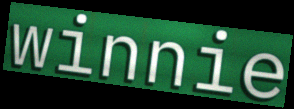
winnie